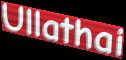
Ullathai